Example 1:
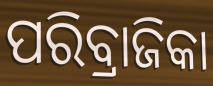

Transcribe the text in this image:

ପରିବ୍ରାଜିକା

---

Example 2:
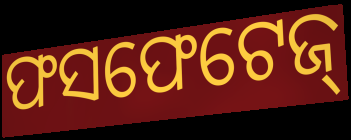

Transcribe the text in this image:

ଫସଫେଟେଜ୍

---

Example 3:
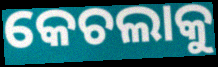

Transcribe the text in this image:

କେଚଲାକୁ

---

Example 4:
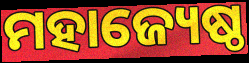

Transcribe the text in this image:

ମହାଜ୍ୟେଷ୍ଠ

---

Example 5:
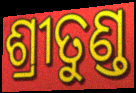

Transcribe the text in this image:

ଶ୍ରୀତୁଣ୍ଡ